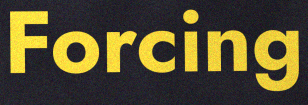
Forcing